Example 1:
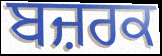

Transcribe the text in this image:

ਬਜ਼ਰਕ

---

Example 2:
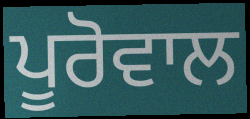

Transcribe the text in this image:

ਪੂਰੋਵਾਲ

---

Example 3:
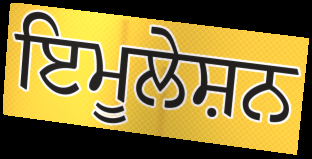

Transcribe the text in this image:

ਇਮੂਲੇਸ਼ਨ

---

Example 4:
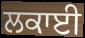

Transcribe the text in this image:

ਲਕਾਈ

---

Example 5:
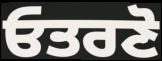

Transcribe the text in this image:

ਓਤਰਣੋ